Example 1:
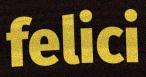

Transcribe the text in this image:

felici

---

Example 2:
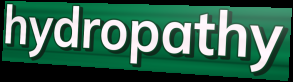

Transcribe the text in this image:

hydropathy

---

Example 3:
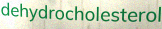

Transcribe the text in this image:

dehydrocholesterol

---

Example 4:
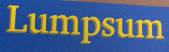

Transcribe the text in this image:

Lumpsum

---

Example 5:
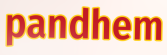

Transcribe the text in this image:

pandhem